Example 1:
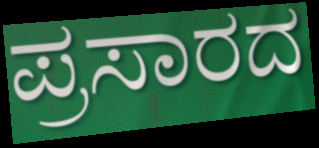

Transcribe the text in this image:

ಪ್ರಸಾರದ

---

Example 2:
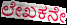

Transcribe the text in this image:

ಲೇಖಕನೇ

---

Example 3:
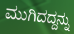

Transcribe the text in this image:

ಮುಗಿದದ್ದನ್ನು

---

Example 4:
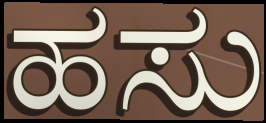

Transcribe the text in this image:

ಹಸು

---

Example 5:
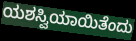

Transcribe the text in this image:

ಯಶಸ್ವಿಯಾಯಿತೆಂದು